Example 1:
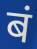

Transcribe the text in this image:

बं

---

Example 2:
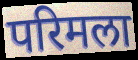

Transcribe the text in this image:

परिमला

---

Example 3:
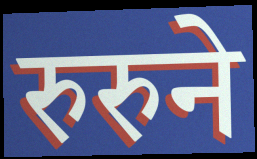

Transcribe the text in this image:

रुरुने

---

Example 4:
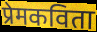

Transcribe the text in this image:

प्रेमकविता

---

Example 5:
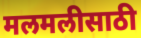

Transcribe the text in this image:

मलमलीसाठी